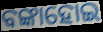
ବଙ୍କାହୋଇ